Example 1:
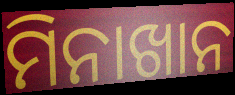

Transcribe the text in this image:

ମିନାଖାନ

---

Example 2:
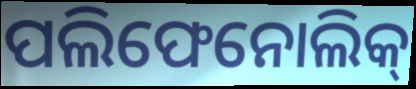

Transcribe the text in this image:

ପଲିଫେନୋଲିକ୍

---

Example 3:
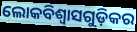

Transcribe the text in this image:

ଲୋକବିଶ୍ଵାସଗୁଡ଼ିକର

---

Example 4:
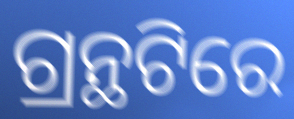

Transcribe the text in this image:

ଗ୍ରନ୍ଥଟିରେ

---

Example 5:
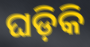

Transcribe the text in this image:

ଘଡ଼ିକି